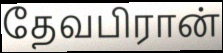
தேவபிரான்